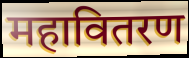
महावितरण